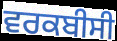
ਵਰਕਬੀਸੀ